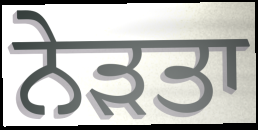
ਨੇੜਤਾ